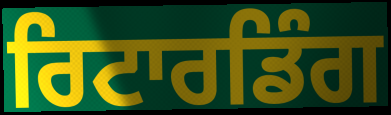
ਰਿਟਾਰਡਿੰਗ